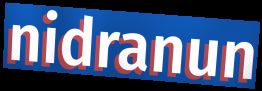
nidranun